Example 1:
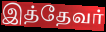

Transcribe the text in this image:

இத்தேவர்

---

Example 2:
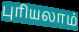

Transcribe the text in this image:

புரியலாம்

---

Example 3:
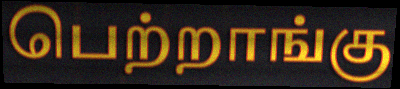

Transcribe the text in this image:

பெற்றாங்கு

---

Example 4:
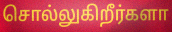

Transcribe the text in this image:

சொல்லுகிறீர்களா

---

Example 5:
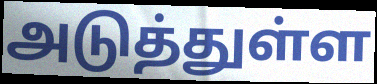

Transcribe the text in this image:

அடுத்துள்ள